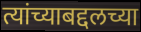
त्यांच्याबद्दलच्या